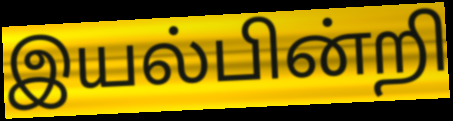
இயல்பின்றி